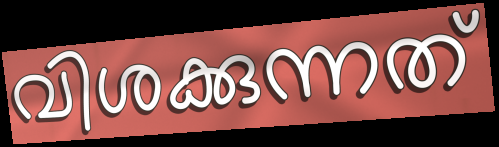
വിശക്കുന്നത്